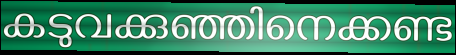
കടുവക്കുഞ്ഞിനെക്കണ്ട